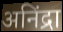
अनिंद्रा